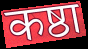
कष्ठा